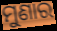
ମୁଣାର